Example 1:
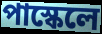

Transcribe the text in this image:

পাস্কেলে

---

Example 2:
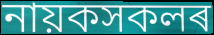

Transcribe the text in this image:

নায়কসকলৰ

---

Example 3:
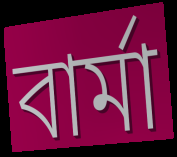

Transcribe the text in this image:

বাৰ্মা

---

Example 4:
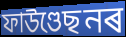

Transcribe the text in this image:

ফাউণ্ডেছনৰ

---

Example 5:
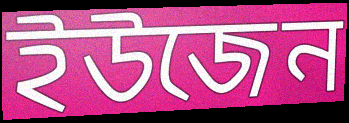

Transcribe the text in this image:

ইউজেন